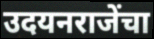
उदयनराजेंचा